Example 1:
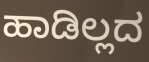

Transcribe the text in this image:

ಹಾಡಿಲ್ಲದ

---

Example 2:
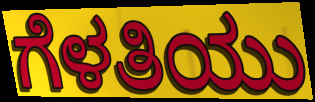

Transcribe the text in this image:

ಗೆಳತಿಯು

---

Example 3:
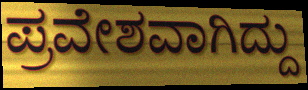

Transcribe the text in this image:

ಪ್ರವೇಶವಾಗಿದ್ದು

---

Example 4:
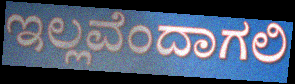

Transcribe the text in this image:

ಇಲ್ಲವೆಂದಾಗಲಿ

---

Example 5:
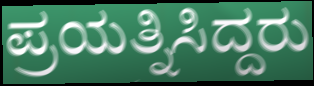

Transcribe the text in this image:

ಪ್ರಯತ್ನಿಸಿದ್ದರು